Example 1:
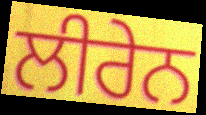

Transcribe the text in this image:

ਲੀਰੇਨ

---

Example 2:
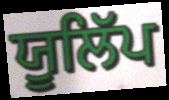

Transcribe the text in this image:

ਯੂਲਿੱਪ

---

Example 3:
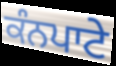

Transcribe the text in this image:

ਕੰਨਪਾਟੇ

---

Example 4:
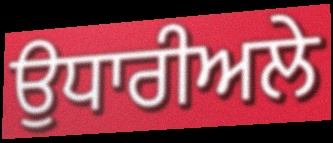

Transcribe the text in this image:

ਉਧਾਰੀਅਲੇ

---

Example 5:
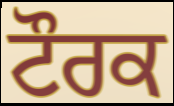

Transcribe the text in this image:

ਟੌਰਕ